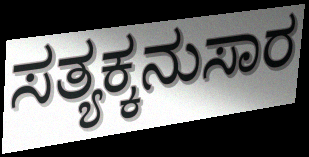
ಸತ್ಯಕ್ಕನುಸಾರ